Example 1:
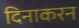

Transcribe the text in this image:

दिनाकरन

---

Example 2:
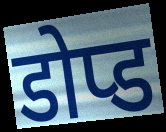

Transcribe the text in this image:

डोप्ड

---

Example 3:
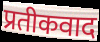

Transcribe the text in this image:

प्रतीकवाद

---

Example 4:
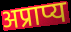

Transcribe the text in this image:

अप्राप्य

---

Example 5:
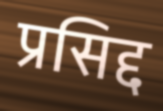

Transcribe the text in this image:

प्रसिद्द